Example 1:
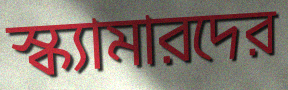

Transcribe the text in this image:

স্ক্যামারদের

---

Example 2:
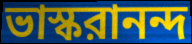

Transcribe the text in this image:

ভাস্করানন্দ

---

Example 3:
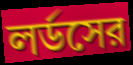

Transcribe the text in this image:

লর্ডসের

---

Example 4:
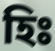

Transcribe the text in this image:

হিঃ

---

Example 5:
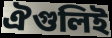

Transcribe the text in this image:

ঐগুলিই